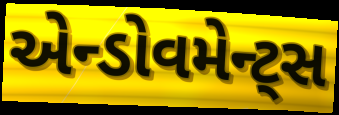
એન્ડોવમેન્ટ્સ